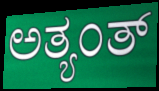
ಅತ್ಯಂತ್